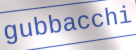
gubbacchi